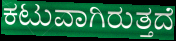
ಕಟುವಾಗಿರುತ್ತದೆ